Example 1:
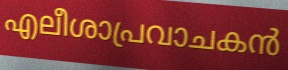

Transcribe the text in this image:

എലീശാപ്രവാചകൻ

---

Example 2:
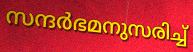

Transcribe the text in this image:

സന്ദർഭമനുസരിച്ച്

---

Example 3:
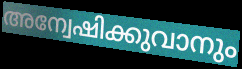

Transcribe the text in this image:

അന്വേഷിക്കുവാനും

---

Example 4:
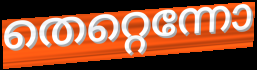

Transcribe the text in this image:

തെറ്റെന്നോ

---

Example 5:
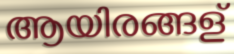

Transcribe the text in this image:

ആയിരങ്ങള്